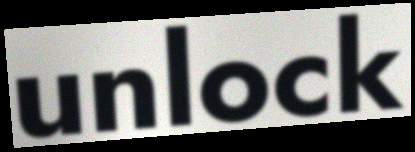
unlock